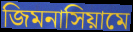
জিমনাসিয়ামে